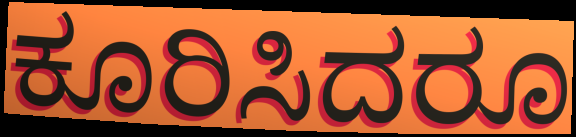
ಕೂರಿಸಿದರೂ